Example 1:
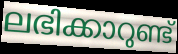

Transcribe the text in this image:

ലഭിക്കാറുണ്ട്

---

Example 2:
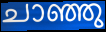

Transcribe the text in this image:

ചാഞ്ഞു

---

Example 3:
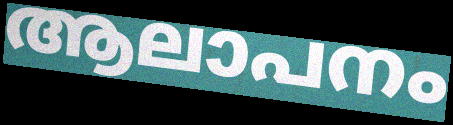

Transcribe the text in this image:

ആലാപനം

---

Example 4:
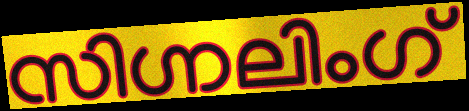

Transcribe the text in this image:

സിഗ്നലിംഗ്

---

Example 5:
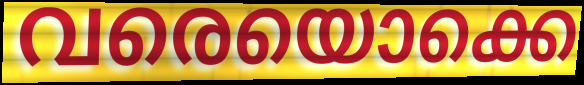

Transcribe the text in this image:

വരെയൊക്കെ